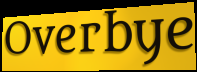
Overbye